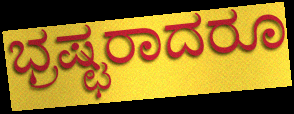
ಭ್ರಷ್ಟರಾದರೂ